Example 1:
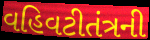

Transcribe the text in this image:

વહિવટીતંત્રની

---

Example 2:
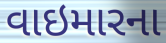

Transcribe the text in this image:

વાઇમારના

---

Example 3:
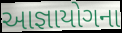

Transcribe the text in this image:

આજ્ઞાયોગના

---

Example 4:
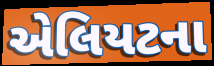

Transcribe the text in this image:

એલિયટના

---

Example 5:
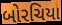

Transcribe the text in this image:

બોરચિયા